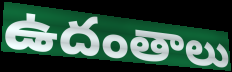
ఉదంతాలు